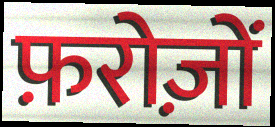
फ़रोज़ों